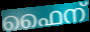
ഫൈന്